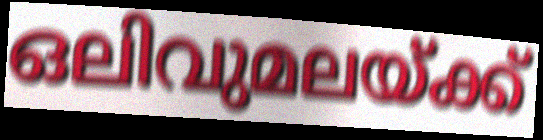
ഒലിവുമലയ്ക്ക്